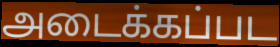
அடைக்கப்பட